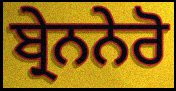
ਬ੍ਰੇਨਨੇਰੋ